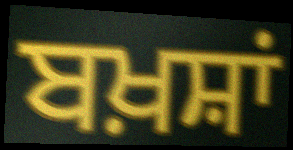
ਬਖ਼ਸ਼ਾਂ